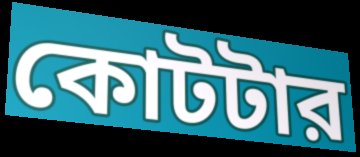
কোটটার